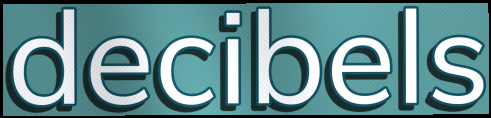
decibels